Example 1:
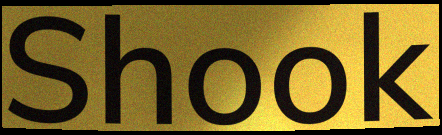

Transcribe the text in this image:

Shook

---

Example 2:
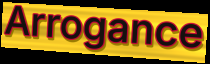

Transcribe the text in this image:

Arrogance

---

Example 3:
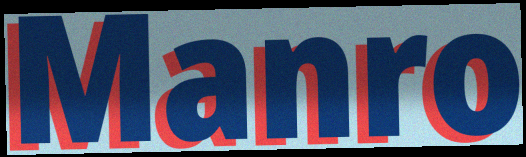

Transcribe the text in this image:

Manro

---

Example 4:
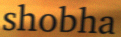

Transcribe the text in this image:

shobha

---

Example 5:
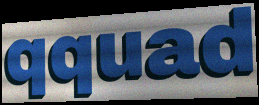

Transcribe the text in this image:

qquad